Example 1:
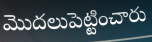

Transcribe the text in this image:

మొదలుపెట్టించారు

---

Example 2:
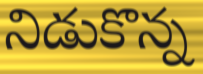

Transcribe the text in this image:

నిడుకొన్న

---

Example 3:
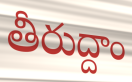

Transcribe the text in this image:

తీరుద్దాం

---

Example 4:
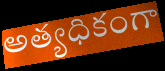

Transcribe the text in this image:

అత్యధికంగా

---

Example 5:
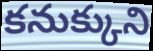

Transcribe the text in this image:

కనుక్కుని